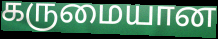
கருமையான